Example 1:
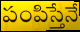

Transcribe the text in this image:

పంపిస్తేనే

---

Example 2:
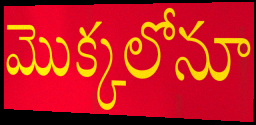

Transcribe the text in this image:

మొక్కలోనూ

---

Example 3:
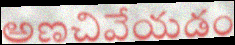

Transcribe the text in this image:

అణచివేయడం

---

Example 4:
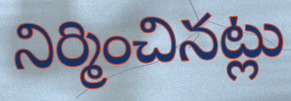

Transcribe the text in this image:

నిర్మించినట్లు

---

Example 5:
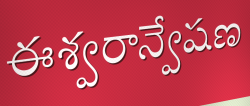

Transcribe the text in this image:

ఈశ్వరాన్వేషణ